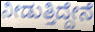
ನೀಡುತ್ತಿದ್ದೇನೆ